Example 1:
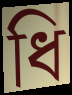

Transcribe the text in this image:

ধি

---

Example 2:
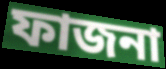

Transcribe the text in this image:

ফাজনা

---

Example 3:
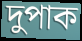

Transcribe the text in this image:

দুপাক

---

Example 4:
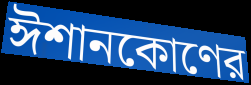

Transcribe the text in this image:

ঈশানকোণের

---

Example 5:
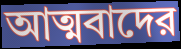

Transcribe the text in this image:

আত্মবাদের